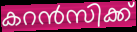
കറൻസിക്ക്